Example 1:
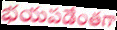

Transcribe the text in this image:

భయపడేంతగా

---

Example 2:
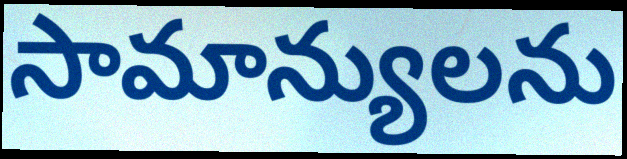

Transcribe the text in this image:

సామాన్యులను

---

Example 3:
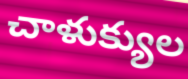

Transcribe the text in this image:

చాళుక్యుల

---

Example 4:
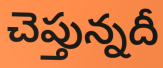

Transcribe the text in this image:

చెప్తున్నదీ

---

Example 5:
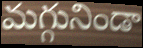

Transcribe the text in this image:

మగ్గునిండా